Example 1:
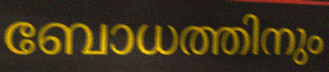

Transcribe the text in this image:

ബോധത്തിനും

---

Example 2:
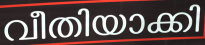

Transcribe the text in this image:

വീതിയാക്കി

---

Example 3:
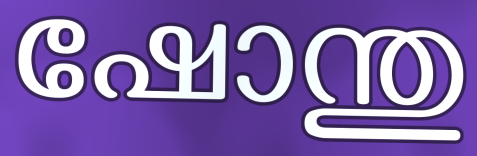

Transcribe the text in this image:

ഷോന്തു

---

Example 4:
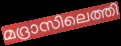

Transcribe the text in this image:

മദ്രാസിലെത്തി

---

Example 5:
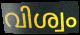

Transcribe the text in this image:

വിശ്വം